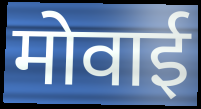
मोवाई